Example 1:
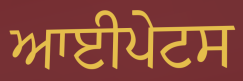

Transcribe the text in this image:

ਆਈਪੇਟਸ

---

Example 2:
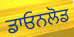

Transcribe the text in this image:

ਡਾਓਨਲੋਡ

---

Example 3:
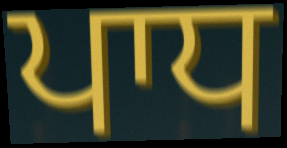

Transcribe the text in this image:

ਪਾਧ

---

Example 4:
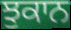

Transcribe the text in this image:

ਝੁਕਾਨ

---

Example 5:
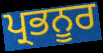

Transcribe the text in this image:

ਪ੍ਰਭਨੂਰ